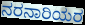
ನರನಾರಿಯರ